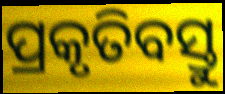
ପ୍ରକୃତିବସ୍ତୁ